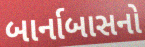
બાર્નાબાસનો